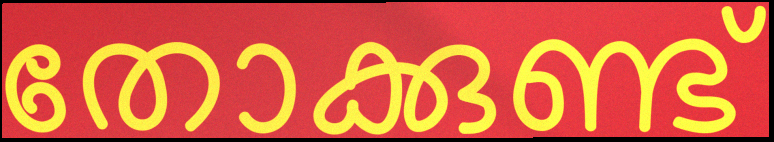
തോക്കുണ്ട്